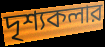
দৃশ্যকলার